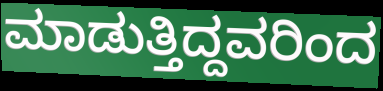
ಮಾಡುತ್ತಿದ್ದವರಿಂದ